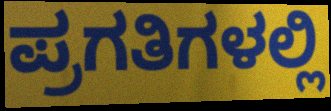
ಪ್ರಗತಿಗಳಲ್ಲಿ